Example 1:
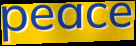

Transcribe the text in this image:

peace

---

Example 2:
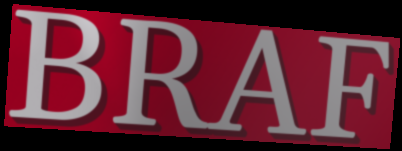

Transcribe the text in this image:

BRAF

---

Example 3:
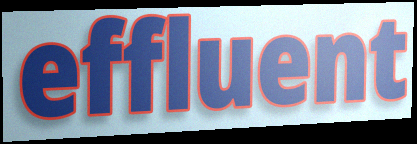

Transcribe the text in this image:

effluent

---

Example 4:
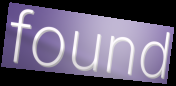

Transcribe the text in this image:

found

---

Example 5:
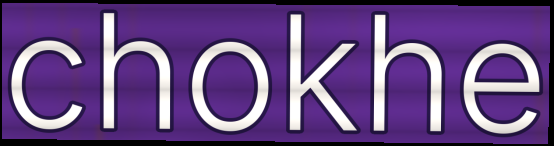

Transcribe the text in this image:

chokhe